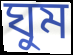
ঘুম